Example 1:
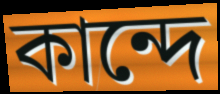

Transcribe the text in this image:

কান্দে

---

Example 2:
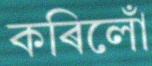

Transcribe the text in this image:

কৰিলোঁ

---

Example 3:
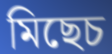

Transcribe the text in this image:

মিছেচ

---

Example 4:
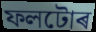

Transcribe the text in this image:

ফলটোৰ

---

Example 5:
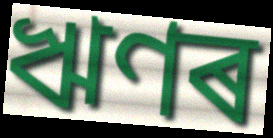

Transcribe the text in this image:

ঋণৰ